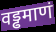
वड्ढमाणं